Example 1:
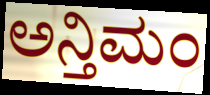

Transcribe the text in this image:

ಅನ್ತಿಮಂ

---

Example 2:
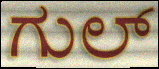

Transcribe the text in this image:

ಗುಲ್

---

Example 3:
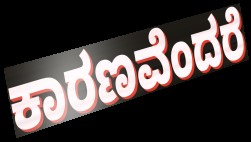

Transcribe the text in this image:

ಕಾರಣವೆಂದರೆ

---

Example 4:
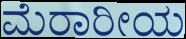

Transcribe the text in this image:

ಮೆರಾರೀಯ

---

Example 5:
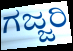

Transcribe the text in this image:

ಗಜ್ಜರಿ